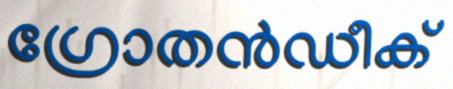
ഗ്രോതൻഡീക്